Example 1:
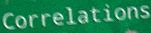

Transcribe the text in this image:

Correlations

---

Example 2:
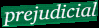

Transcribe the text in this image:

prejudicial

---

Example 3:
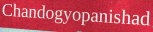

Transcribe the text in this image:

Chandogyopanishad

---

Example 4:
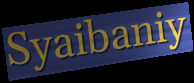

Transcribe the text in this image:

Syaibaniy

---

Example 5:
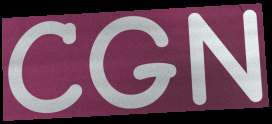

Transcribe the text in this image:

CGN